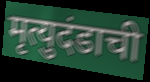
मृत्युदंडाची